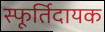
स्फूर्तिदायक